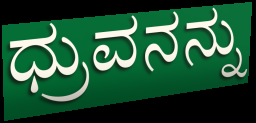
ಧ್ರುವನನ್ನು